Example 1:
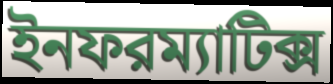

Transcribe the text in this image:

ইনফরম্যাটিক্স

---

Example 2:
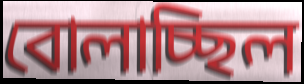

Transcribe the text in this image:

বোলাচ্ছিল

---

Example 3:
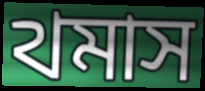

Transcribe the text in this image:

থমাস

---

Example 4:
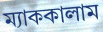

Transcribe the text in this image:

ম্যাককালাম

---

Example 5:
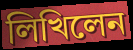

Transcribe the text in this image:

লিখিলেন